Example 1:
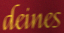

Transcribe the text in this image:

deines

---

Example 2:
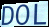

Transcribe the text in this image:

DOL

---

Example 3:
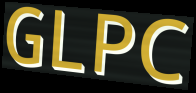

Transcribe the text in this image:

GLPC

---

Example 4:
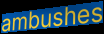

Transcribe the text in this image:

ambushes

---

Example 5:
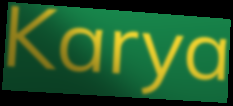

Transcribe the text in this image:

Karya